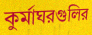
কুর্মাঘরগুলির